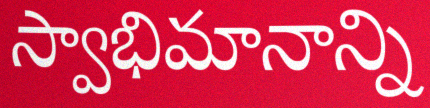
స్వాభిమానాన్ని